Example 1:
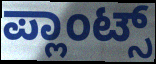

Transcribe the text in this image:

ಪ್ಲಾಂಟ್ಸ್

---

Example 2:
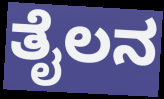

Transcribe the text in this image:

ತೈಲನ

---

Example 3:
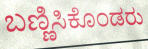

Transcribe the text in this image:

ಬಣ್ಣಿಸಿಕೊಂಡರು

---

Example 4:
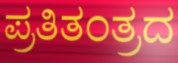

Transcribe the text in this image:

ಪ್ರತಿತಂತ್ರದ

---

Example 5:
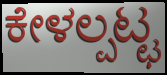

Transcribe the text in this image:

ಕೇಳಲ್ಪಟ್ಟ